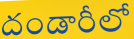
దండారీలో